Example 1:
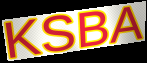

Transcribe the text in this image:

KSBA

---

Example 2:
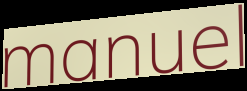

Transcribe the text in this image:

manuel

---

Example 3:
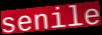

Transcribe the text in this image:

senile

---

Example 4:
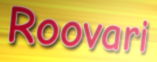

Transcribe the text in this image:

Roovari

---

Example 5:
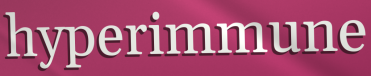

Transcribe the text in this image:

hyperimmune